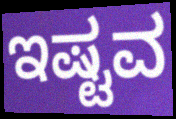
ಇಷ್ಟವ